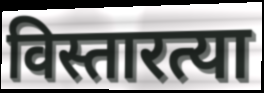
विस्तारत्या